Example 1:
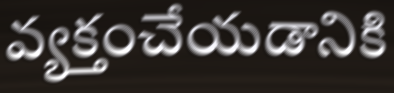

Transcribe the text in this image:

వ్యక్తంచేయడానికి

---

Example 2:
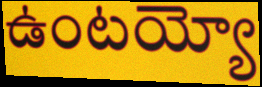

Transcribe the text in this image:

ఉంటయ్యో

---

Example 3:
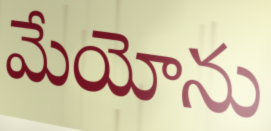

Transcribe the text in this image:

మేయోను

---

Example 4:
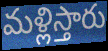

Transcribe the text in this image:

మళ్లిస్తారు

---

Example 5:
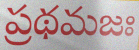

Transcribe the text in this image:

ప్రథమజః